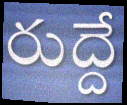
రుద్దే